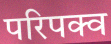
परिपक्व